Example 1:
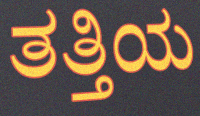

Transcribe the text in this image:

ತತ್ತಿಯ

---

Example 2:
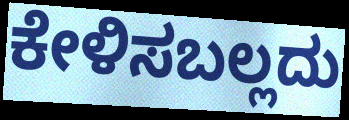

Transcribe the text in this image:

ಕೇಳಿಸಬಲ್ಲದು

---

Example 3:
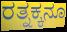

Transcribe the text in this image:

ರತ್ನಕ್ಕನೂ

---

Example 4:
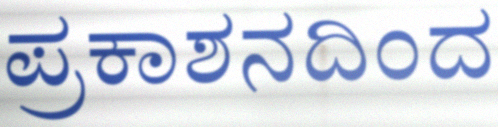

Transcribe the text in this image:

ಪ್ರಕಾಶನದಿಂದ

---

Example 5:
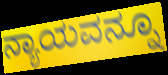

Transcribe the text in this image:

ನ್ಯಾಯವನ್ನೂ